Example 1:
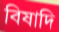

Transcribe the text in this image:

বিষাদি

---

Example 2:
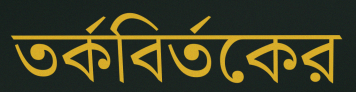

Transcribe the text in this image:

তর্কবির্তকের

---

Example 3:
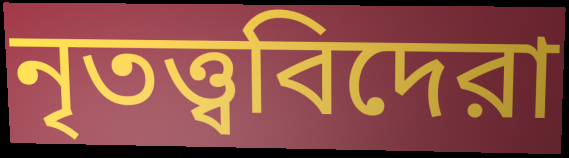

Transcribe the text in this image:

নৃতত্ত্ববিদেরা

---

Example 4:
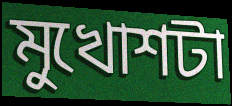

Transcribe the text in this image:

মুখোশটা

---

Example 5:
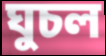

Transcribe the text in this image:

ঘুচল